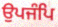
ਉਪਜੰਪਿ